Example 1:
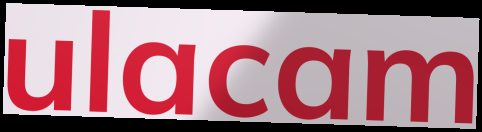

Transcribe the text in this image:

ulacam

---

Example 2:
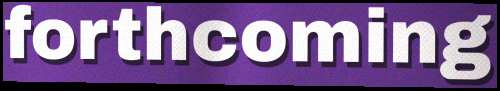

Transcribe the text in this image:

forthcoming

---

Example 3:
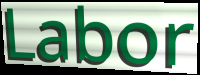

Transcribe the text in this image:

Labor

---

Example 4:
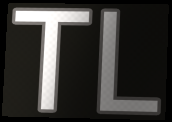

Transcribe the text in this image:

TL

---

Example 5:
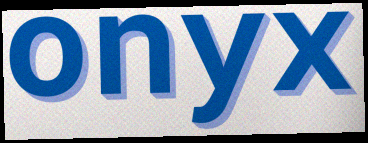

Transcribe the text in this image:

onyx